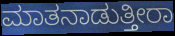
ಮಾತನಾಡುತ್ತೀರಾ